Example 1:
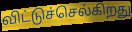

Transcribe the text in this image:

விட்டுச்செல்கிறது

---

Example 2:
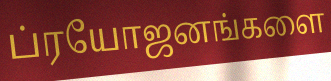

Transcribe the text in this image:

ப்ரயோஜனங்களை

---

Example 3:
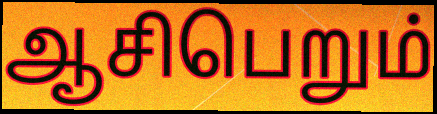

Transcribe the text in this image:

ஆசிபெறும்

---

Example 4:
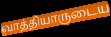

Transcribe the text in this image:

வாத்தியாருடைய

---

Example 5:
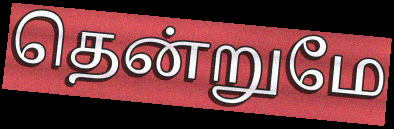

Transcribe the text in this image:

தென்றுமே